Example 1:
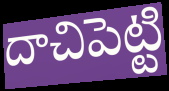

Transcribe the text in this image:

దాచిపెట్టి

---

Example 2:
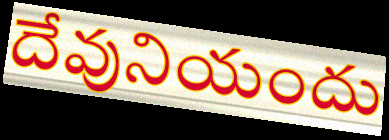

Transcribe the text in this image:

దేవునియందు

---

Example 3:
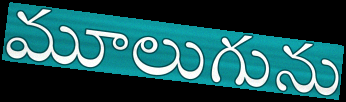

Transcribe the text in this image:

మూలుగును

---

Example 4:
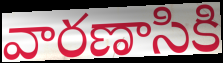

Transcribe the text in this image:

వారణాసికి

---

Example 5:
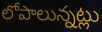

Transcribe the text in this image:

లోపాలున్నట్లు